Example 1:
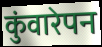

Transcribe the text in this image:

कुंवारेपन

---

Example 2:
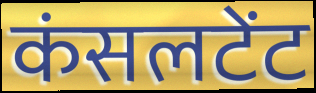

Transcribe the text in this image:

कंसलटेंट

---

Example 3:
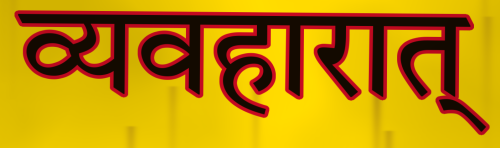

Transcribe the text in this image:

व्यवहारात्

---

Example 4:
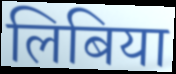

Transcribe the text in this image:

लिबिया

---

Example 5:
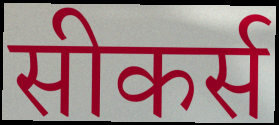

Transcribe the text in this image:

सीकर्स